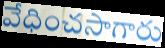
వేధించసాగారు